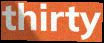
thirty